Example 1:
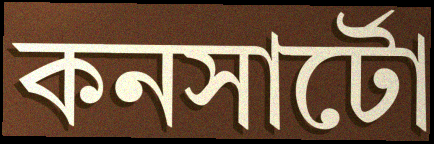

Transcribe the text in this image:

কনসার্টো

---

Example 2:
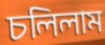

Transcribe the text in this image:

চলিলাম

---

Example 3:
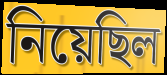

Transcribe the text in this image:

নিয়েছিল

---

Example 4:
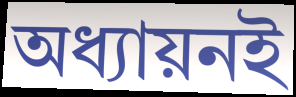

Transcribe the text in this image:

অধ্যায়নই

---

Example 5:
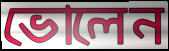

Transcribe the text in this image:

ভোলেন